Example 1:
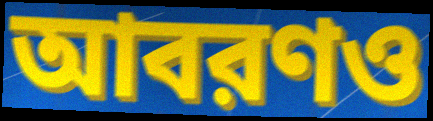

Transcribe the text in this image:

আবরণও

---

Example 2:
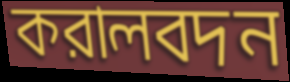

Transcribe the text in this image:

করালবদন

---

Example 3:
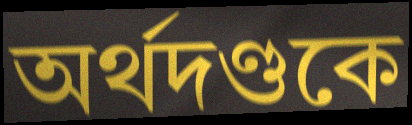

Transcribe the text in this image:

অর্থদণ্ডকে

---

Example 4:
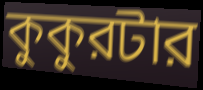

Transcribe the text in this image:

কুকুরটার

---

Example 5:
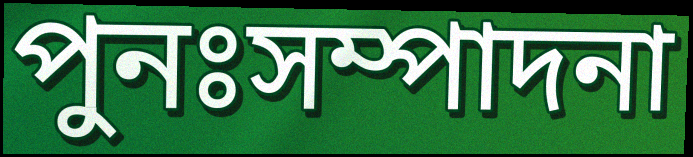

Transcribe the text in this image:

পুনঃসম্পাদনা